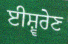
ਈਸ਼੍ਵਰੇਣ